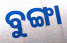
ବୁଙ୍ଗା